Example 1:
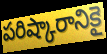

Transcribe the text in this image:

పరిష్కారానికై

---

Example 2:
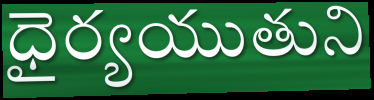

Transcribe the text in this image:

ధైర్యయుతుని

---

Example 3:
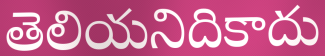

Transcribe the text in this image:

తెలియనిదికాదు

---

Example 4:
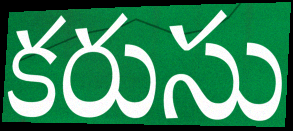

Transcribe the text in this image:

కరుసు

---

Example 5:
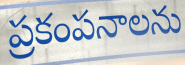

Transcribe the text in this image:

ప్రకంపనాలను